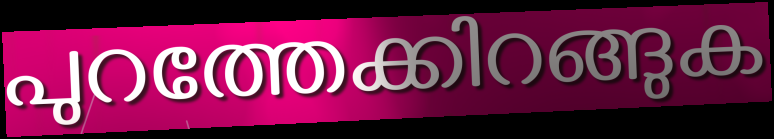
പുറത്തേക്കിറങ്ങുക